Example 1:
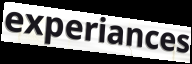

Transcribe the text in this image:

experiances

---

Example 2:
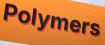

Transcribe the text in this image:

Polymers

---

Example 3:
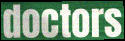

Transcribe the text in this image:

doctors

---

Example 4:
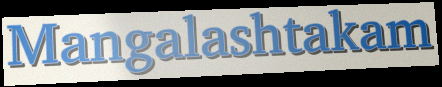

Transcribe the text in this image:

Mangalashtakam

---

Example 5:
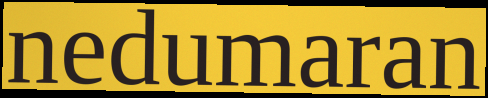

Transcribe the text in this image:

nedumaran